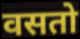
वसतो